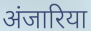
अंजारिया